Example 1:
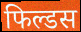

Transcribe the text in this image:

फिल्डस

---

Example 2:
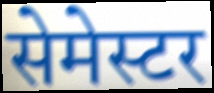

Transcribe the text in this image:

सेमेस्टर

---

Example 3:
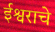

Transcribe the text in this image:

ईश्वराचे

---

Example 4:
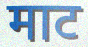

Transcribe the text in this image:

माट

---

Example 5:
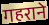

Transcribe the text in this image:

गहराने